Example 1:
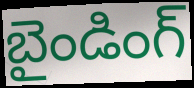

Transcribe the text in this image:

బైండింగ్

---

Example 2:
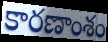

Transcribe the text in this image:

కారణాంశం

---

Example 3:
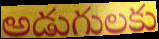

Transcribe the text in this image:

అడుగులకు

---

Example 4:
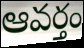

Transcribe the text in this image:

ఆవర్తం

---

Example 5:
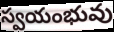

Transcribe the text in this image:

స్వయంభువు